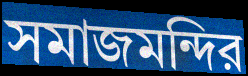
সমাজমন্দির